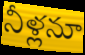
నీళ్లనూ